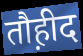
तौह़ीद